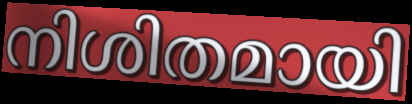
നിശിതമായി